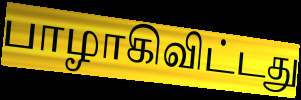
பாழாகிவிட்டது